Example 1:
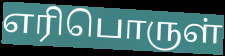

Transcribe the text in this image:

எரிபொருள்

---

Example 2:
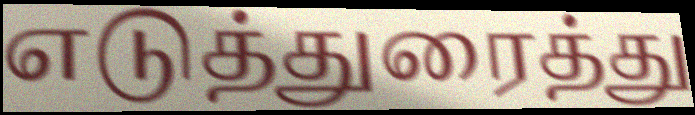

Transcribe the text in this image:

எடுத்துரைத்து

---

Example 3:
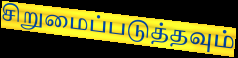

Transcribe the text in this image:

சிறுமைப்படுத்தவும்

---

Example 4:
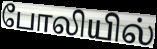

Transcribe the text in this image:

போலியில்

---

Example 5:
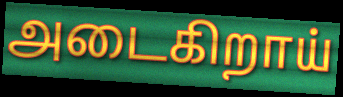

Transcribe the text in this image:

அடைகிறாய்